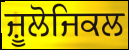
ਜ਼ੂਲੋਜਿਕਲ